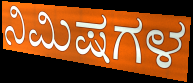
ನಿಮಿಷಗಳ